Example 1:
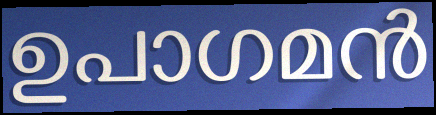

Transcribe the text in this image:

ഉപാഗമൻ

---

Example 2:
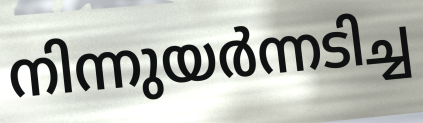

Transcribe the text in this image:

നിന്നുയർന്നടിച്ച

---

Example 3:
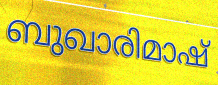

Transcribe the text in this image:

ബുഖാരിമാഷ്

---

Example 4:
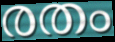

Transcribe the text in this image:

രതം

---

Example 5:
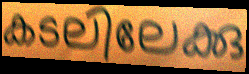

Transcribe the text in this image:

കടലിലേക്കു